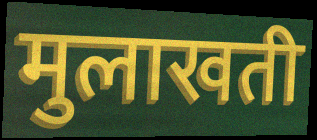
मुलाखती